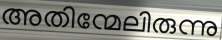
അതിന്മേലിരുന്നു